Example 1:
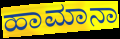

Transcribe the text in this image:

ಹಾಮಾನಾ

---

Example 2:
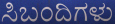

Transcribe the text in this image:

ಸಿಬಂದಿಗಳು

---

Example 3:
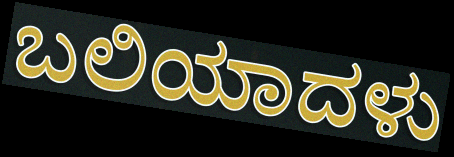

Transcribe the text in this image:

ಬಲಿಯಾದಳು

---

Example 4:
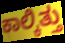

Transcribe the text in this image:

ಕಾಲ್ಕಿತ್ತು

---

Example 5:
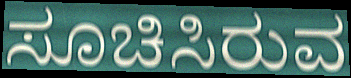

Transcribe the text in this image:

ಸೂಚಿಸಿರುವ